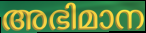
അഭിമാന